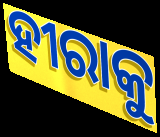
ହୀରାକୁ